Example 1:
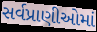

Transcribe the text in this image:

સર્વપ્રાણીઓમાં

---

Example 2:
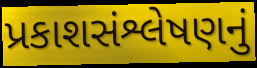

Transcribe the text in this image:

પ્રકાશસંશ્લેષણનું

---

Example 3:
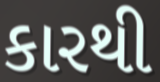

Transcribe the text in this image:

કારથી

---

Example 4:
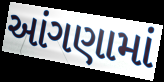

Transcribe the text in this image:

આંગણામાં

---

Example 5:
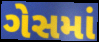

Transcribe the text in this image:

ગેસમાં